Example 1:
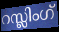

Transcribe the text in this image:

റസ്ലിംഗ്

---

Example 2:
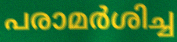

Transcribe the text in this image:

പരാമർശിച്ച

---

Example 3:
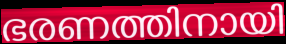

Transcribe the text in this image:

ഭരണത്തിനായി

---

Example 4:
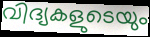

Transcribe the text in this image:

വിദ്യകളുടെയും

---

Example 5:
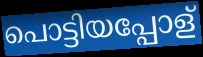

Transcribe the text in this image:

പൊട്ടിയപ്പോള്